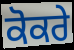
ਕੋਕਰੇ